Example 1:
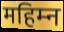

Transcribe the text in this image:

महिम्न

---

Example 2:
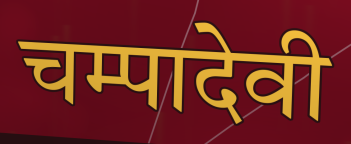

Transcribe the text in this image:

चम्पादेवी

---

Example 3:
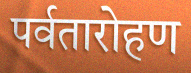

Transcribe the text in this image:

पर्वतारोहण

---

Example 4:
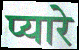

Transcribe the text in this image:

प्यारे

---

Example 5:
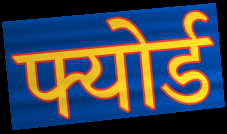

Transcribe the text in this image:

फ्योर्ड